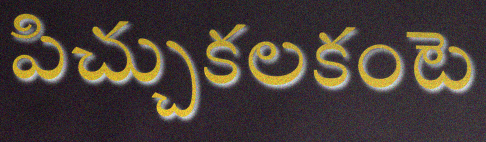
పిచ్చుకలకంటె